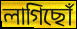
লাগিছোঁ